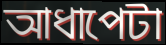
আধাপেটা